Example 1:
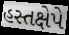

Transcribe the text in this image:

હસ્તક્ષેપે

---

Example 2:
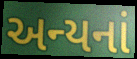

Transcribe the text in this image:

અન્યનાં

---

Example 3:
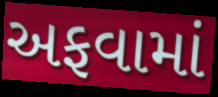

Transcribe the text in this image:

અફવામાં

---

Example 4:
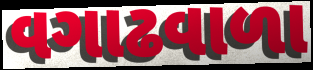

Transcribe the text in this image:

વગાઢવાળા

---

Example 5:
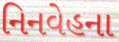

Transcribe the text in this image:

નિનવેહના